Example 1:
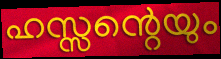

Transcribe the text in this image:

ഹസ്സന്റെയും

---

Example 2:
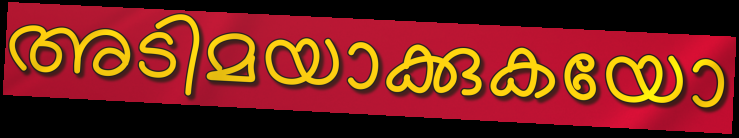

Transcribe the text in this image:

അടിമയാക്കുകയോ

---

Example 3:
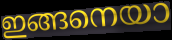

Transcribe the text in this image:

ഇങ്ങനെയാ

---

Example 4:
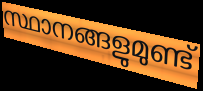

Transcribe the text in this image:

സ്ഥാനങ്ങളുമുണ്ട്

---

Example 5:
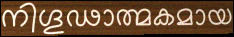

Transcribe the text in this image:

നിഗൂഢാത്മകമായ